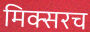
मिक्सरच